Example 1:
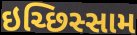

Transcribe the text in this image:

ઇચ્છિસ્સામ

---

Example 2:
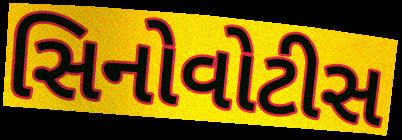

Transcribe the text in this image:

સિનોવોટીસ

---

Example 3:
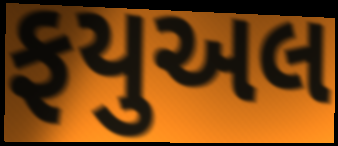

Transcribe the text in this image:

ફયુઅલ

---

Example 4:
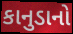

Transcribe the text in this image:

કાનુડાનો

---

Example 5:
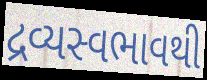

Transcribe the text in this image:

દ્રવ્યસ્વભાવથી